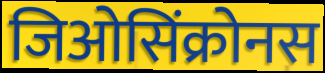
जिओसिंक्रोनस